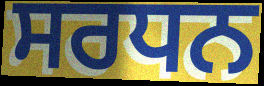
ਸਰਧਨ